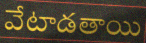
వేటాడతాయి